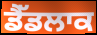
ਡੈੱਡਲਾਕ